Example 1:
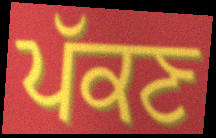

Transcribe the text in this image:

ਪੱਕਣ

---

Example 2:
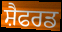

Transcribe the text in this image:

ਸ਼ੈਫਰਡ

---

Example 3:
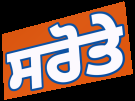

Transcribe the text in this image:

ਸਰੋਤੇ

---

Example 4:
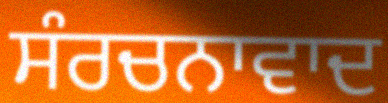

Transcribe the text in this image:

ਸੰਰਚਨਾਵਾਦ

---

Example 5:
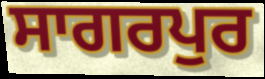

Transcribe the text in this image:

ਸਾਗਰਪੁਰ